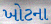
ખોટના